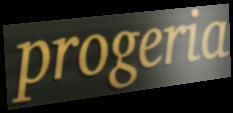
progeria